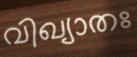
വിഖ്യാതഃ